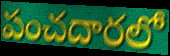
పంచదారలో